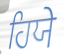
ਹਿਯੇ